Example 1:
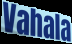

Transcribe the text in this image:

Vahala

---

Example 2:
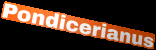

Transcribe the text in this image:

Pondicerianus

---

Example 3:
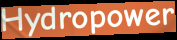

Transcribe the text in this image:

Hydropower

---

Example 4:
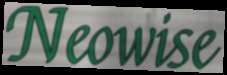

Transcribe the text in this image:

Neowise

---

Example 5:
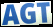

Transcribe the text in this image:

AGT